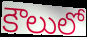
కౌలులో